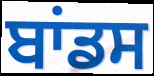
ਬਾਂਡਸ